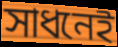
সাধনেই